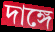
দাঙ্গে